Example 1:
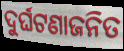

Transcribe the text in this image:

ଦୁର୍ଘଟଣାଜନିତ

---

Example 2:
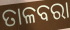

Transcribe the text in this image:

ତାଳବରା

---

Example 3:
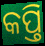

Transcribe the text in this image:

କପ୍ତି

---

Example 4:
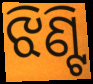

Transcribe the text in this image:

ଝିଣ୍ଟି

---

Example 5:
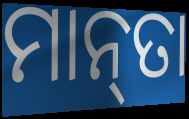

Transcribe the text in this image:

ମାନ୍‌ତା